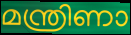
മന്ത്രിണാ